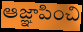
ఆజ్ఞాపించి